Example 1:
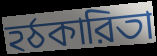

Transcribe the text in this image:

হঠকারিতা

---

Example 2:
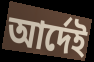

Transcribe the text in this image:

আর্দেই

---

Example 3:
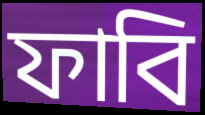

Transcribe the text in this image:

ফাবি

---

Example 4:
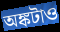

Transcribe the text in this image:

অঙ্কটাও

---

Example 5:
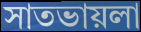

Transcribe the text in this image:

সাতভায়লা